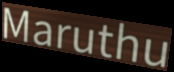
Maruthu